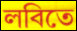
লবিতে